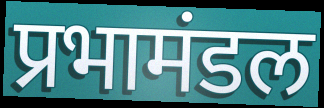
प्रभामंडल